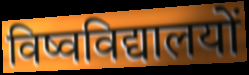
विष्वविद्यालयों